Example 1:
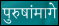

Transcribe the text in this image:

पुरुषांमागे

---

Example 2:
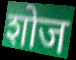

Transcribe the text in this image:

शोज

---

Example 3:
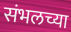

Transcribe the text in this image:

संभलच्या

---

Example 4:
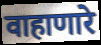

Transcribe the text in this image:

वाहाणारे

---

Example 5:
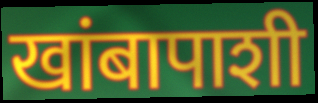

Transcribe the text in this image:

खांबापाशी